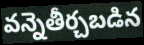
వన్నెతీర్చబడిన